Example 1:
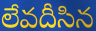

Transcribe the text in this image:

లేవదీసిన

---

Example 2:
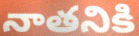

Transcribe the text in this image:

నాతనికి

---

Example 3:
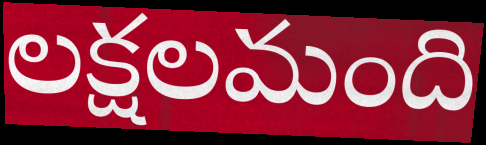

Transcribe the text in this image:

లక్షలమంది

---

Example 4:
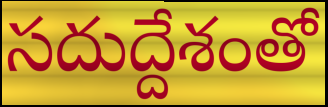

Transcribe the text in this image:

సదుద్దేశంతో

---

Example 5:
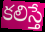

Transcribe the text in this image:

కలిస్తే